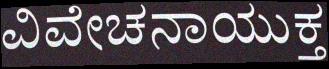
ವಿವೇಚನಾಯುಕ್ತ